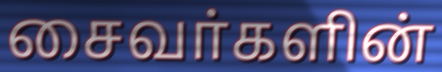
சைவர்களின்